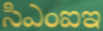
సిఎంఐఇ